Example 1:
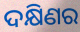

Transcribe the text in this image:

ଦକ୍ଷିଣର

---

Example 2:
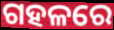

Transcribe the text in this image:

ଗହଳରେ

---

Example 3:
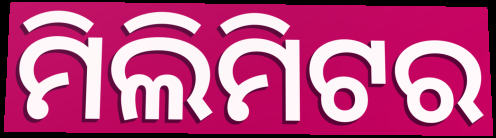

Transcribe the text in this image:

ମିଲିମିଟର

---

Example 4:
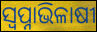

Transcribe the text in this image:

ସ୍ଵପ୍ନାଭିଳାଷୀ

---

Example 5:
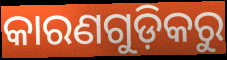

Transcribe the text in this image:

କାରଣଗୁଡ଼ିକରୁ